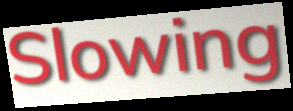
Slowing